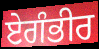
ਏਗੰਭੀਰ